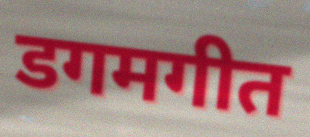
डगमगीत